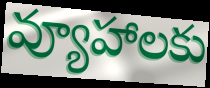
వ్యూహాలకు